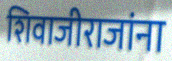
शिवाजीराजांना